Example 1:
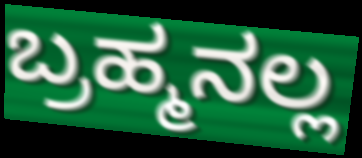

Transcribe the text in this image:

ಬ್ರಹ್ಮನಲ್ಲ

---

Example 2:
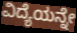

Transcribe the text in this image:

ವಿದ್ಯೆಯನ್ನೇ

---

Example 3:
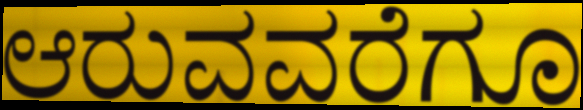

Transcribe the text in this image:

ಆರುವವರೆಗೂ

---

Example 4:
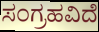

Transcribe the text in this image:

ಸಂಗ್ರಹವಿದೆ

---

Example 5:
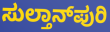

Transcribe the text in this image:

ಸುಲ್ತಾನ್‌ಪುರಿ